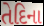
તેદિના